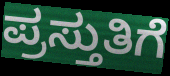
ಪ್ರಸ್ತುತಿಗೆ